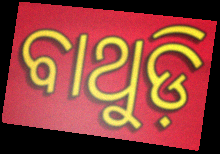
ବାଥୁଡ଼ି